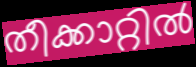
തീക്കാറ്റിൽ